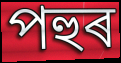
পহুৰ